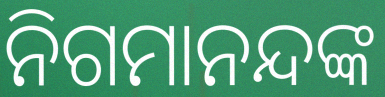
ନିଗମାନନ୍ଦଙ୍କ